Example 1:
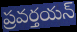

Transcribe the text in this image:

ప్రవర్తయన్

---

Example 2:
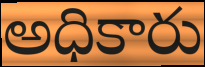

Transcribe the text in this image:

అధికారు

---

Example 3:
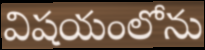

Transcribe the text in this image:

విషయంలోను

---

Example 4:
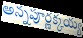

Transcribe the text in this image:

అన్నపూర్ణక్కయ్య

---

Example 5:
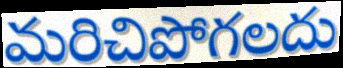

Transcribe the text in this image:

మరిచిపోగలదు